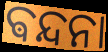
ଵନ୍ଦନା